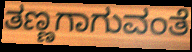
ತಣ್ಣಗಾಗುವಂತೆ